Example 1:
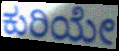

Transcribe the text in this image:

ಕುರಿಯೇ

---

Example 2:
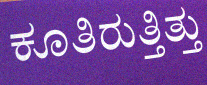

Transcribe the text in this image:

ಕೂತಿರುತ್ತಿತ್ತು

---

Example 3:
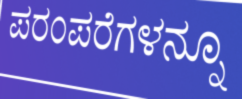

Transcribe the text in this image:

ಪರಂಪರೆಗಳನ್ನೂ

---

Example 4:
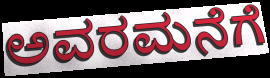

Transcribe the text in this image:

ಅವರಮನೆಗೆ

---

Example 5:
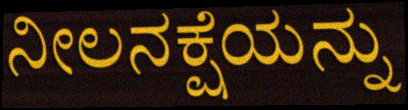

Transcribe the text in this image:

ನೀಲನಕ್ಷೆಯನ್ನು